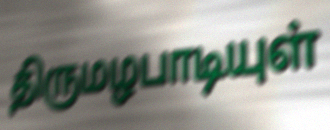
திருமழபாடியுள்